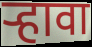
ऱ्हावा